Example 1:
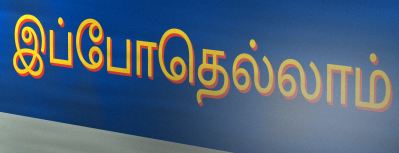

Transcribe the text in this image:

இப்போதெல்லாம்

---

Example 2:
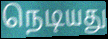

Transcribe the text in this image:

நெடியது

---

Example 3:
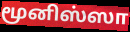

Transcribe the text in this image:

மூனிஸ்ஸா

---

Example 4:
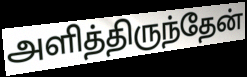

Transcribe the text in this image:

அளித்திருந்தேன்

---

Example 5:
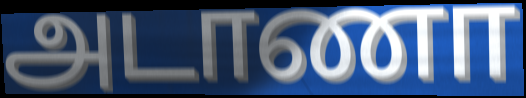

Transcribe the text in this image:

அடாணா